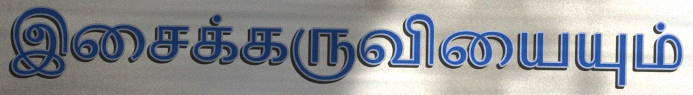
இசைக்கருவியையும்